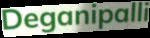
Deganipalli